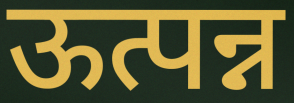
ऊत्पन्न